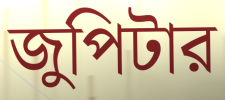
জুপিটার